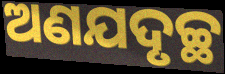
ଅଣଯଦୃଚ୍ଛ